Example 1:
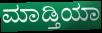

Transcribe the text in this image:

ಮಾಡ್ತಿಯಾ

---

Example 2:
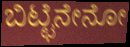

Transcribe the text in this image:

ಬಿಟ್ಟೆನೇನೋ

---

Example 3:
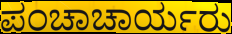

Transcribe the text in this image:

ಪಂಚಾಚಾರ್ಯರು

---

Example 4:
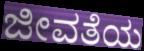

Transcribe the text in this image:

ಜೀವತೆಯ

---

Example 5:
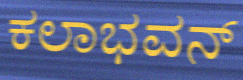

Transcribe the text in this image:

ಕಲಾಭವನ್